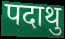
पदाथु